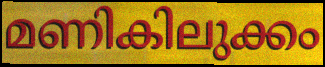
മണികിലുക്കം